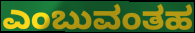
ಎಂಬುವಂತಹ